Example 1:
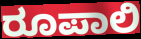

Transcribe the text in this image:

ರೂಪಾಲಿ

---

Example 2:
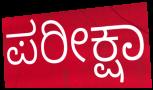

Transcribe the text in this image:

ಪರೀಕ್ಷಾ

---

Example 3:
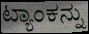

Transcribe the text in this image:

ಟ್ಯಾಂಕನ್ನು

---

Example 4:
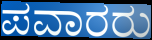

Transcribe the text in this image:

ಪವಾರರು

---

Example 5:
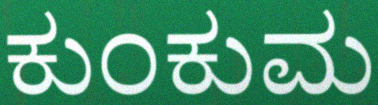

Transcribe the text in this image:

ಕುಂಕುಮ